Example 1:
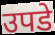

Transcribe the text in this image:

उपडे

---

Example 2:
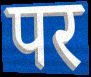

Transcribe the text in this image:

पर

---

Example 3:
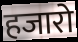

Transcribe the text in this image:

हजारो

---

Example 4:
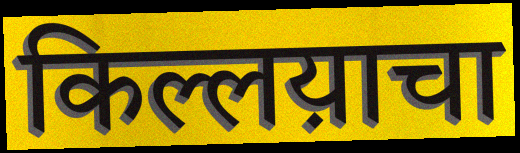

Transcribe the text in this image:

किल्लय़ाचा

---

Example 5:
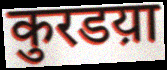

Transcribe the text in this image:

कुरडय़ा